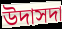
উদাসদা